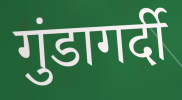
गुंडागर्दी